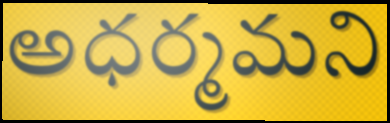
అధర్మమని